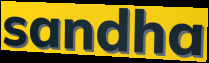
sandha